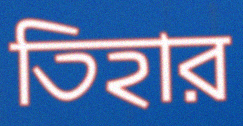
তিহার